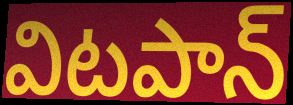
విటపాన్